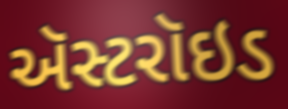
ઍસ્ટરૉઇડ